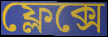
ফ্লেক্সে